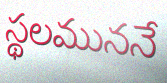
స్థలముననే